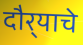
दौर्‍याचे